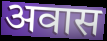
अवास